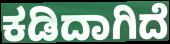
ಕಡಿದಾಗಿದೆ